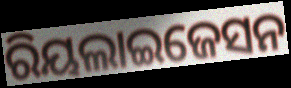
ରିୟଲାଇଜେସନ